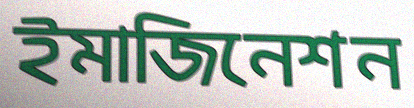
ইমাজিনেশন